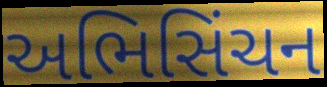
અભિસિંચન